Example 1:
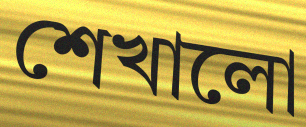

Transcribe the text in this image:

শেখালো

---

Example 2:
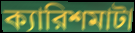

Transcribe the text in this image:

ক্যারিশমাটা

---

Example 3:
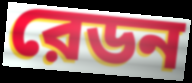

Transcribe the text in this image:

রেডন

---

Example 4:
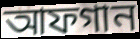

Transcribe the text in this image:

আফগান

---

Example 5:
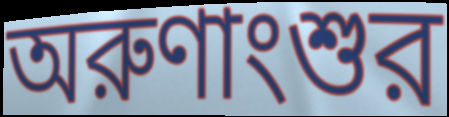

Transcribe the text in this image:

অরুণাংশুর